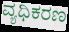
ವ್ಯಧಿಕರಣ